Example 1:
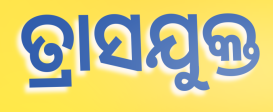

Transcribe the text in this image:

ତ୍ରାସଯୁକ୍ତ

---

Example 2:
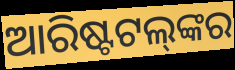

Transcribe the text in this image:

ଆରିଷ୍ଟଟଲ୍‌ଙ୍କର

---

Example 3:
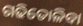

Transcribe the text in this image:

ଗଢିତୋଳିବା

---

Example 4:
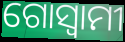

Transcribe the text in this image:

ଗୋସ୍ୱାମୀ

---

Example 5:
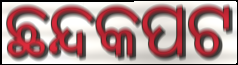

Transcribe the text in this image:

ଛନ୍ଦକପଟ